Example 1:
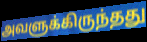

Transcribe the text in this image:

அவளுக்கிருந்தது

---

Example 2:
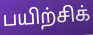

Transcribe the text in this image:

பயிற்சிக்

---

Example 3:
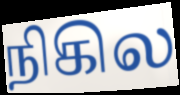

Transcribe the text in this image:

நிகில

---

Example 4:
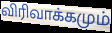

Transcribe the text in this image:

விரிவாக்கமும்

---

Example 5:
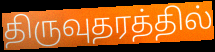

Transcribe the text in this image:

திருவுதரத்தில்